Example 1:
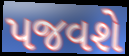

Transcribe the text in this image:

પજવશે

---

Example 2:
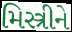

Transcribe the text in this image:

મિસ્ત્રીને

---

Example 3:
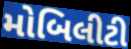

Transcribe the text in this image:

મોબિલીટી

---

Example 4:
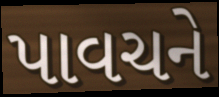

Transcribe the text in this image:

પાવચને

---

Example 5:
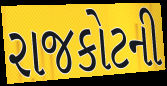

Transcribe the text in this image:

રાજકોટની